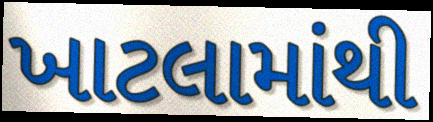
ખાટલામાંથી